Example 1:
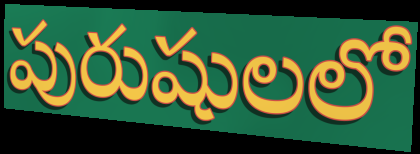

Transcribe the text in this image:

పురుషులలో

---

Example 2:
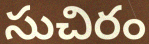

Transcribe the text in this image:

సుచిరం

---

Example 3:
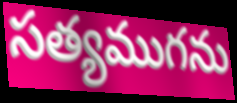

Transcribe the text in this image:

సత్యముగను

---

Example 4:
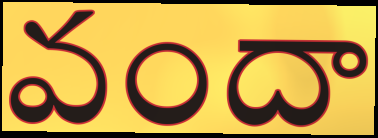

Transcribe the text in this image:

వందా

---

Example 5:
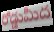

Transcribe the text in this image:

రోడ్డుమీద